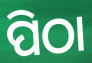
ପିଠା